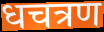
धचत्रण